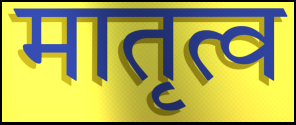
मातृत्व